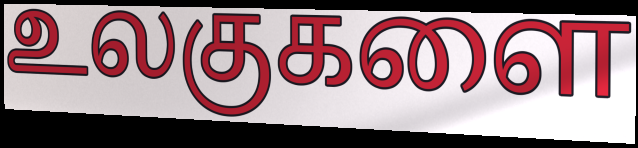
உலகுகளை